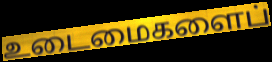
உடைமைகளைப்